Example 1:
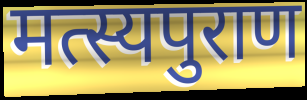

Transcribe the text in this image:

मत्स्यपुराण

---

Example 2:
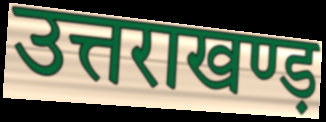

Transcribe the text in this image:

उत्तराखण्ड़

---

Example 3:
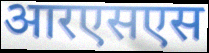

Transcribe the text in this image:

आरएसएस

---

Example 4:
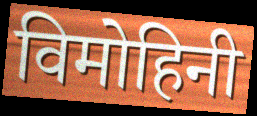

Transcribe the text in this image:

विमोहिनी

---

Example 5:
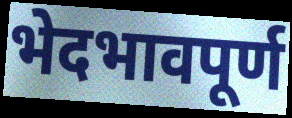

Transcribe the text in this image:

भेदभावपूर्ण